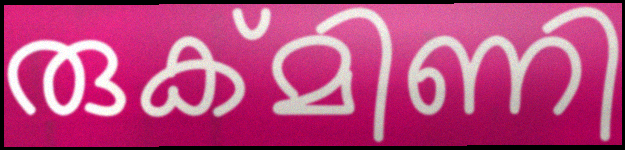
രുക്മിണി